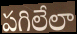
పగిలేలా